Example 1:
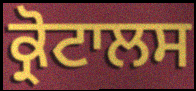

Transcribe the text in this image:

ਕ੍ਰੋਟਾਲਸ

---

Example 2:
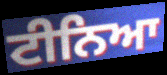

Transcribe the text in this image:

ਟੀਨਿਆ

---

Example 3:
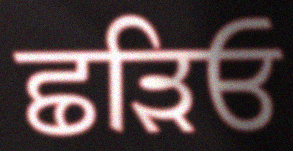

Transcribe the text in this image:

ਛੜਿਓ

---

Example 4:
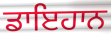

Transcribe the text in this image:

ਡਾਇਹਾਨ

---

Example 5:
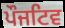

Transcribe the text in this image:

ਪੌਜਟਿਵ